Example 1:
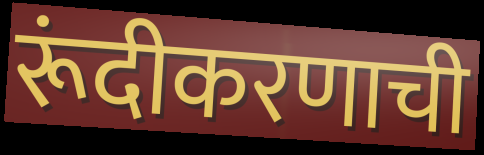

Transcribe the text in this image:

रूंदीकरणाची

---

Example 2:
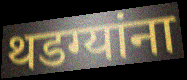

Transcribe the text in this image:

थडग्यांना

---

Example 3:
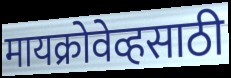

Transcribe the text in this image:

मायक्रोवेव्हसाठी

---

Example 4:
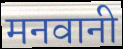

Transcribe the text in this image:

मनवानी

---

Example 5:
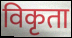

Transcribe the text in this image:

विकृता